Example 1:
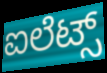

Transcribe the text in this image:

ಐಲೆಟ್ಸ್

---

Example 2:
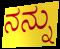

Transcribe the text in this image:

ನನ್ನು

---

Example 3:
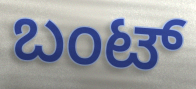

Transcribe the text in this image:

ಬಂಟ್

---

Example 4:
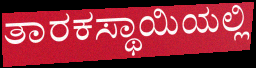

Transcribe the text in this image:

ತಾರಕಸ್ಥಾಯಿಯಲ್ಲಿ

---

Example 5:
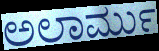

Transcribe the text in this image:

ಅಲಾರ್ಮು